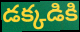
డక్కడికి